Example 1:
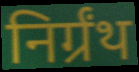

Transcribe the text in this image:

निर्ग्रंथ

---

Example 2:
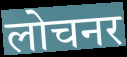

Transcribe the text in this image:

लोचनर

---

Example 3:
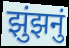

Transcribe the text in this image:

झुंझनुं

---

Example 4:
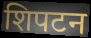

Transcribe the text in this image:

शिपटन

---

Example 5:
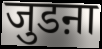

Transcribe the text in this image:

जुडऩा